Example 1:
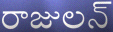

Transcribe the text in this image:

రాజులన్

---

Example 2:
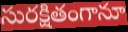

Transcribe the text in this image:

సురక్షితంగానూ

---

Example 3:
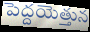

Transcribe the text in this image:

పెద్దయెత్తున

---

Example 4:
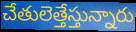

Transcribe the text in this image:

చేతులెత్తేస్తున్నారు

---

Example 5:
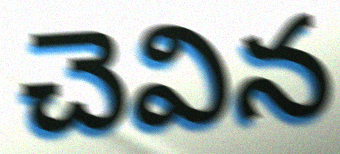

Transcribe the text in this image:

చెవిన